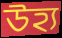
উহ্য